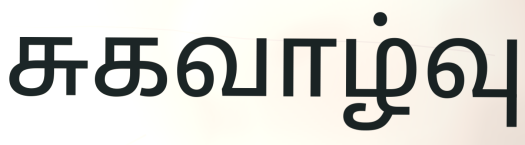
சுகவாழ்வு